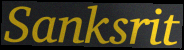
Sanksrit